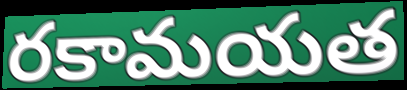
రకామయత